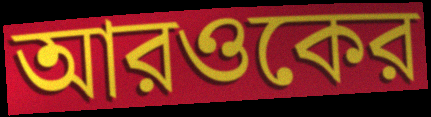
আরওকের